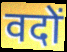
वदों